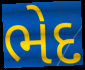
ભેદ